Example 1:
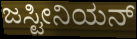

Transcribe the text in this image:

ಜಸ್ಟೀನಿಯನ್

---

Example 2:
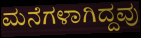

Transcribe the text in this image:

ಮನೆಗಳಾಗಿದ್ದವು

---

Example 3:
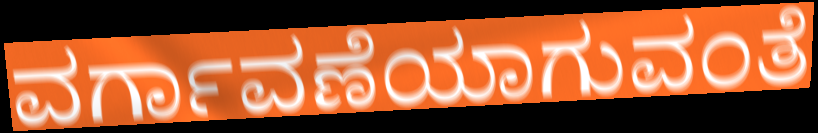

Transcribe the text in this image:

ವರ್ಗಾವಣೆಯಾಗುವಂತೆ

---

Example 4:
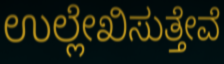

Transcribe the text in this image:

ಉಲ್ಲೇಖಿಸುತ್ತೇವೆ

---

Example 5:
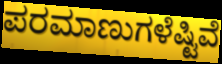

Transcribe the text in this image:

ಪರಮಾಣುಗಳೆಷ್ಟಿವೆ